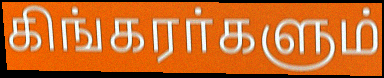
கிங்கரர்களும்